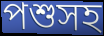
পশুসহ